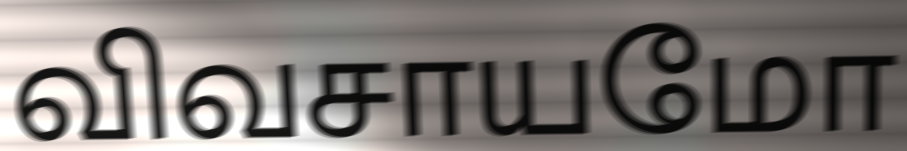
விவசாயமோ